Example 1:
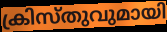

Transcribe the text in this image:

ക്രിസ്തുവുമായി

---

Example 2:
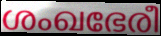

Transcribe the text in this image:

ശംഖഭേരീ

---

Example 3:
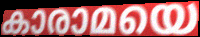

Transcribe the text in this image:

കാരാമയെ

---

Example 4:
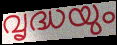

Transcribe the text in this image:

വൃദ്ധയും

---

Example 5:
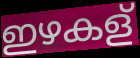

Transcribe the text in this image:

ഇഴകള്